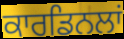
ਕਾਰਡਿਨਲਾਂ